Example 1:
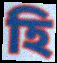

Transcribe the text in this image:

হি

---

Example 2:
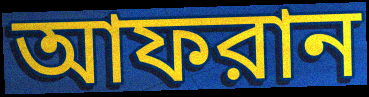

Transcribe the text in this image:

আফরান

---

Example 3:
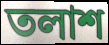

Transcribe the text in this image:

তলাশ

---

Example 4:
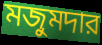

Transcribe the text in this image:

মজুমদার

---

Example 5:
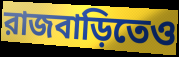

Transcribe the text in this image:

রাজবাড়িতেও